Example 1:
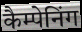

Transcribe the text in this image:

कैम्पेनिंग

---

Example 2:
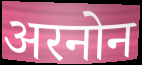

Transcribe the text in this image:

अरनोन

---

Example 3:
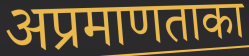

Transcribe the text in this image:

अप्रमाणताका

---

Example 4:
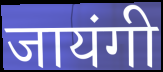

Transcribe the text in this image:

जायंगी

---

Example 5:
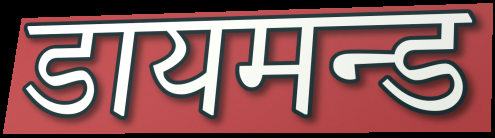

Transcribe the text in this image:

डायमन्ड